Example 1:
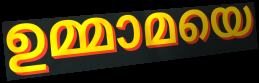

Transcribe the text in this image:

ഉമ്മാമയെ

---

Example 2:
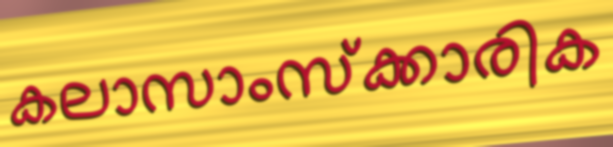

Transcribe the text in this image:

കലാസാംസ്ക്കാരിക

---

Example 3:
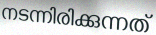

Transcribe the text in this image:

നടന്നിരിക്കുന്നത്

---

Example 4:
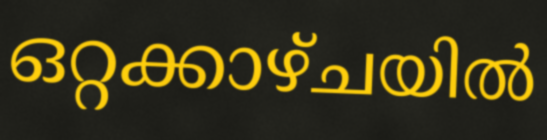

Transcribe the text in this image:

ഒറ്റക്കാഴ്ചയിൽ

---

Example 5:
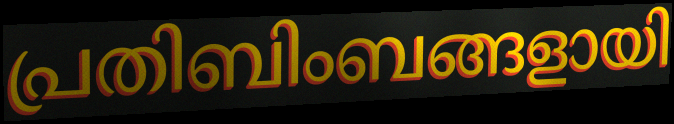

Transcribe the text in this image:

പ്രതിബിംബങ്ങളായി